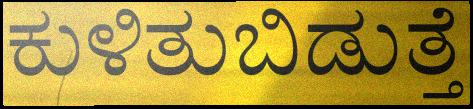
ಕುಳಿತುಬಿಡುತ್ತೆ